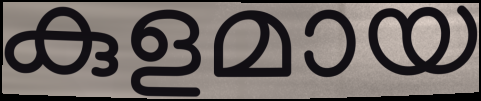
കുളമായ